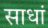
साधां